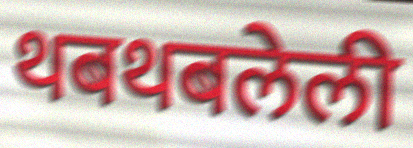
थबथबलेली